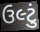
ઉલ્ટું